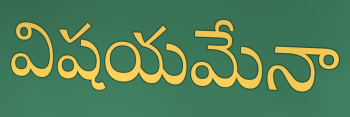
విషయమేనా